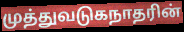
முத்துவடுகநாதரின்